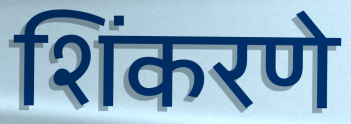
शिंकरणे